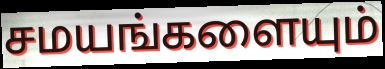
சமயங்களையும்